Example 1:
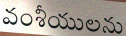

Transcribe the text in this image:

వంశీయులను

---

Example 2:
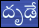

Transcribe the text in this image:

దృఢే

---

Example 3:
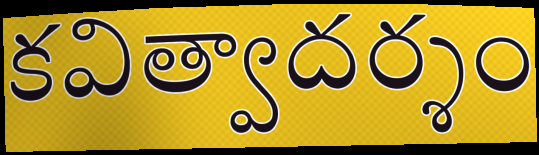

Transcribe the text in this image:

కవిత్వాదర్శం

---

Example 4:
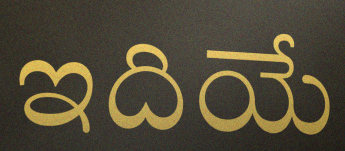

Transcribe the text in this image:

ఇదియే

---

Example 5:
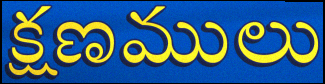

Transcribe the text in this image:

క్షణములు